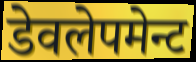
डेवलेपमेन्ट